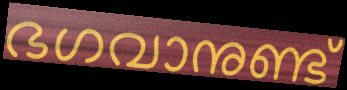
ഭഗവാനുണ്ട്